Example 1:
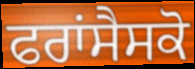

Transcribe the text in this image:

ਫਰਾਂਸੈਸਕੋ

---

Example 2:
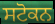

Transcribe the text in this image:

ਸਟੋਕਨ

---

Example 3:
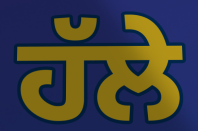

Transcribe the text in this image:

ਹੱਲੇ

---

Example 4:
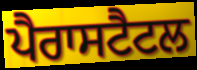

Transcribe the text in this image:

ਪੈਰਾਸਟੈਟਲ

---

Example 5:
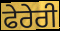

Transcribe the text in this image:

ਫੇਰੇਰੀ